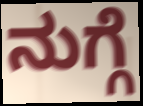
ನುಗ್ಗೆ